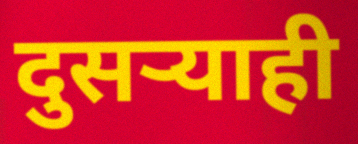
दुसऱ्याही